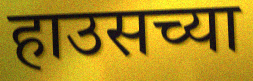
हाउसच्या